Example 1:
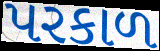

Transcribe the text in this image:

પરકાળ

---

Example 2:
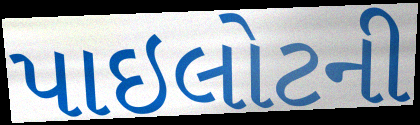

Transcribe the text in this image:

પાઇલોટની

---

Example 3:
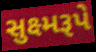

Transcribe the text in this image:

સુક્ષ્મરૂપે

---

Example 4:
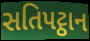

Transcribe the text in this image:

સતિપટ્ઠાન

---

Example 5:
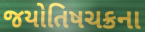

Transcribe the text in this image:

જયોતિષચક્રના